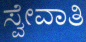
ಸ್ವೇವಾತಿ